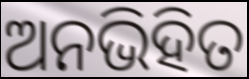
ଅନଭିହିତ